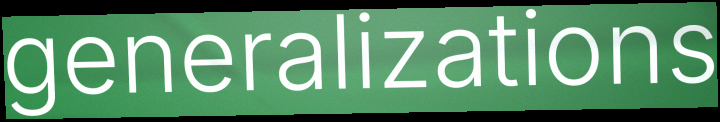
generalizations